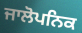
ਜਾਲੋਪਨਿਕ